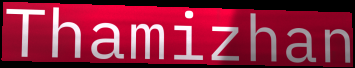
Thamizhan